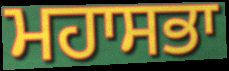
ਮਹਾਸਭਾ